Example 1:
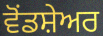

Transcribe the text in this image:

ਵੋਂਡਸ਼ੇਅਰ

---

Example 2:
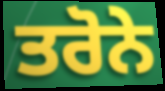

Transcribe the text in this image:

ਤਰੋਨੇ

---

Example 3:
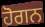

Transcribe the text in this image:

ਹੋਗਨ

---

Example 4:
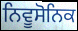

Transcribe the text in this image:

ਨਿਵੂਸੋਨਿਕ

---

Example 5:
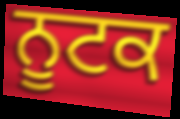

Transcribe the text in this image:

ਨੂਟਕ